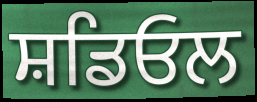
ਸ਼ਡਿਓਲ